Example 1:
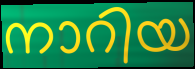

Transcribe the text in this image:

നാറിയ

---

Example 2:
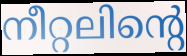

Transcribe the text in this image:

നീറ്റലിന്റെ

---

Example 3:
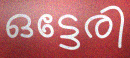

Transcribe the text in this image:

ഒട്ടേരി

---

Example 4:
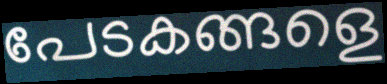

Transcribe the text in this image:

പേടകങ്ങളെ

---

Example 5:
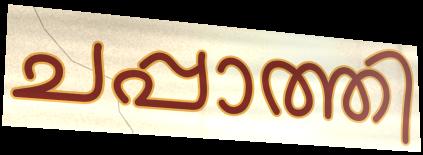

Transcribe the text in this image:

ചപ്പാത്തി